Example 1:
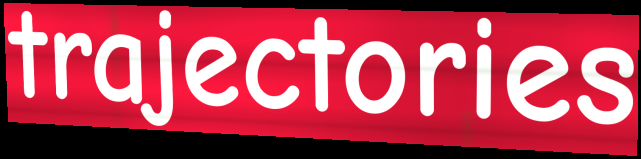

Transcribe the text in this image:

trajectories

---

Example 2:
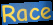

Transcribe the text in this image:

Race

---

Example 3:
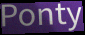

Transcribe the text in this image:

Ponty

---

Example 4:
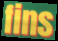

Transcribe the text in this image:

fins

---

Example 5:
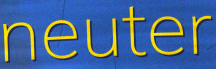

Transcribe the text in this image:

neuter